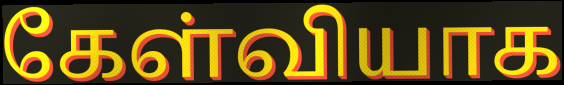
கேள்வியாக